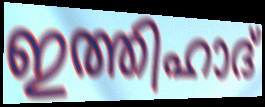
ഇത്തിഹാദ്